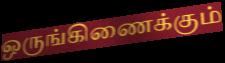
ஒருங்கிணைக்கும்